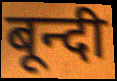
बून्दी